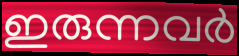
ഇരുന്നവർ